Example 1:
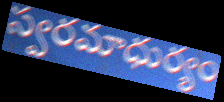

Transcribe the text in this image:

స్వరమాధుర్యం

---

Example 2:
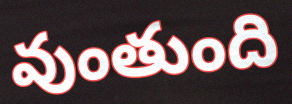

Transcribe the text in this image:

వుంతుంది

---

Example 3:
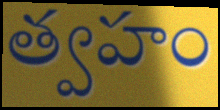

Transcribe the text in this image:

త్వహం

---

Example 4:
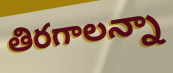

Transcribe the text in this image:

తిరగాలన్నా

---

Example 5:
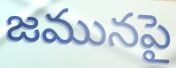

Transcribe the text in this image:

జమునపై